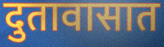
दुतावासात